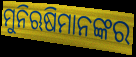
ମୁନିଋଷିମାନଙ୍କର